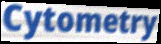
Cytometry